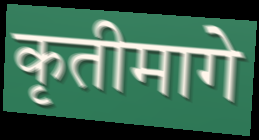
कृतीमागे